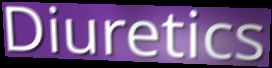
Diuretics